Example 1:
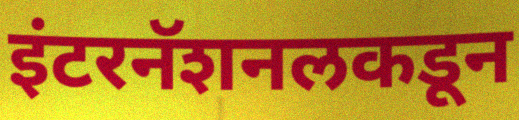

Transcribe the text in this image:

इंटरनॅशनलकडून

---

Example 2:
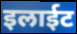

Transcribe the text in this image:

इलाईट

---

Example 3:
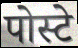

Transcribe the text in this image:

पोस्टे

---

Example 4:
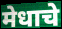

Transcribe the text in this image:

मेधाचे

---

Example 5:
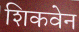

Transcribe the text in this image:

शिकवेन